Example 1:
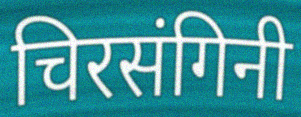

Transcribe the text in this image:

चिरसंगिनी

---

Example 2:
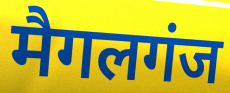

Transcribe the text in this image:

मैगलगंज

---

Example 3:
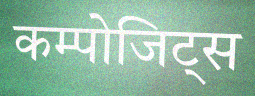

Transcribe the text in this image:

कम्पोजिट्स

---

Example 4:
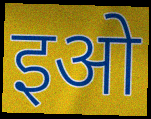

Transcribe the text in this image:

इओ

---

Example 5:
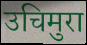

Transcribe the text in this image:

उचिमुरा